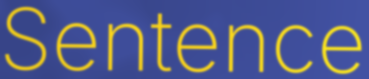
Sentence